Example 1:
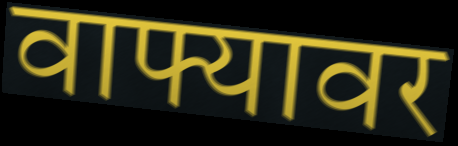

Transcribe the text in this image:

वाफ्यावर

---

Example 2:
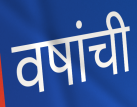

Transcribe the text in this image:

वषांची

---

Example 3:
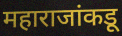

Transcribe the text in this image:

महाराजांकडू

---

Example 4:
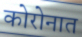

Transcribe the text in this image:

कोरोनात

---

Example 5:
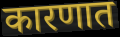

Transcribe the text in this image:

कारणात